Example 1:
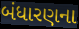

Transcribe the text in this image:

બંધારણના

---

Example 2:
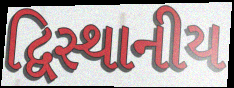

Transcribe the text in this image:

દ્વિસ્થાનીય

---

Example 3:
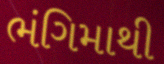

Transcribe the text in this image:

ભંગિમાથી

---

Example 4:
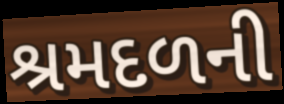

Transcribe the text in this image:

શ્રમદળની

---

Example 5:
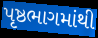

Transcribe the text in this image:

પૃષ્ઠભાગમાંથી